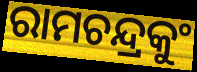
ରାମଚନ୍ଦ୍ରକୁଂ